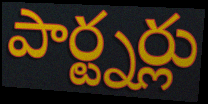
పార్ట్నర్లు